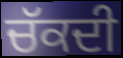
ਚੱਕਦੀ